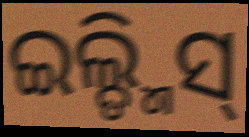
ଇଲ୍ଡ୍ମିସ୍